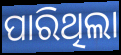
ପାରିଥିଲା